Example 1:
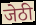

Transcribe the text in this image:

जेठी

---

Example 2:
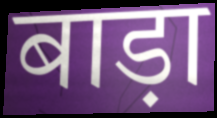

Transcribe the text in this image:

बाड़ा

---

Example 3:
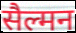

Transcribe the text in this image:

सैल्मन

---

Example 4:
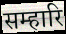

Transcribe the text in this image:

सम्हारि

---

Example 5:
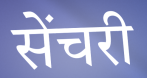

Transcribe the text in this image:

सेंचरी